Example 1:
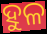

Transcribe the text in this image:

ହୁଳ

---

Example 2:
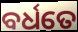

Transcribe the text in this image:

ବର୍ଧତେ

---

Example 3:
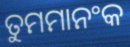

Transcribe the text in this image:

ତୁମମାନଂକ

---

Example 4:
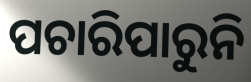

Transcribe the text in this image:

ପଚାରିପାରୁନି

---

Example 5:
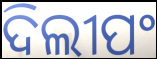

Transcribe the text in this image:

ଦିଲୀପଂ